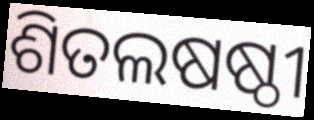
ଶିତଲଷଷ୍ଠୀ